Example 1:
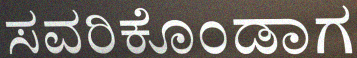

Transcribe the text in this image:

ಸವರಿಕೊಂಡಾಗ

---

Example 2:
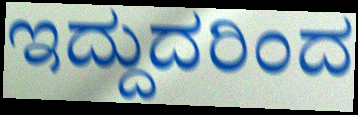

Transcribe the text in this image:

ಇದ್ದುದರಿಂದ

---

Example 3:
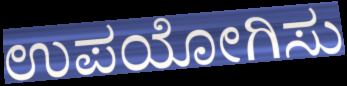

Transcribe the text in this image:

ಉಪಯೋಗಿಸು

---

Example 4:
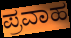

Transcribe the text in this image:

ಪ್ರವಾಹ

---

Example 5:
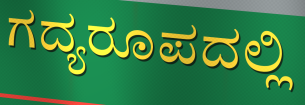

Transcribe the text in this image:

ಗದ್ಯರೂಪದಲ್ಲಿ